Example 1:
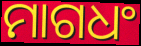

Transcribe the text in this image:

ମାଗଧଂ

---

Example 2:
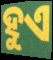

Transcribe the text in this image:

ହୁଏ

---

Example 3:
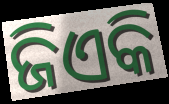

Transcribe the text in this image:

ଜିଏକି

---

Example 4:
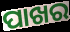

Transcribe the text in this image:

ପାଖର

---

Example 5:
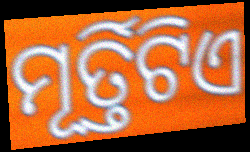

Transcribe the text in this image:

ମୂର୍ତ୍ତିଟିଏ